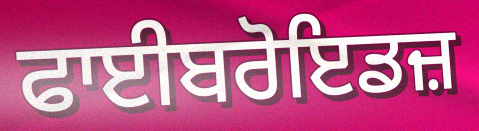
ਫਾਈਬਰੋਇਡਜ਼